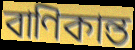
বাণিকান্ত